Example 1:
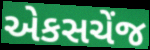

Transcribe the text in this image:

એકસચેંજ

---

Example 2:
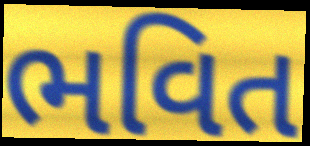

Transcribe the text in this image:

ભવિત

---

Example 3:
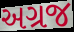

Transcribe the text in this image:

અગ્રજ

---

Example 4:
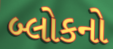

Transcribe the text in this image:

બ્લોકનો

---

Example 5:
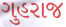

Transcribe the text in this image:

ગુહરાજ